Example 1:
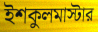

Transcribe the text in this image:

ইশকুলমাস্টার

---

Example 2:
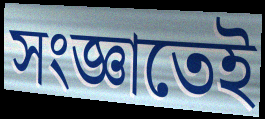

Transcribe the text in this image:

সংজ্ঞাতেই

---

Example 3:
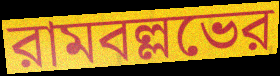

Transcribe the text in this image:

রামবল্লভের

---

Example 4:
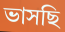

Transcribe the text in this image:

ভাসছি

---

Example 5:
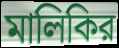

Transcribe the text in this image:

মালিকির